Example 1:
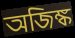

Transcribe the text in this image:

অজিঙ্ক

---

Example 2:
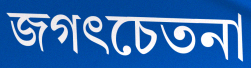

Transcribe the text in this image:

জগৎচেতনা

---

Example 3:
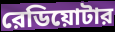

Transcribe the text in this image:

রেডিয়োটার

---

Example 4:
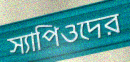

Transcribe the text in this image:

স্যাপিওদের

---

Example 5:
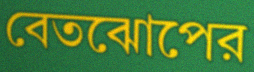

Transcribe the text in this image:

বেতঝোপের